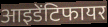
आइडेंटिफायर